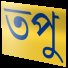
তপু